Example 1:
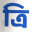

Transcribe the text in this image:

ত্ৰি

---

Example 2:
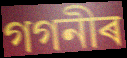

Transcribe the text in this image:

গগনীৰ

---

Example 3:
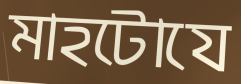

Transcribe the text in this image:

মাহটোযে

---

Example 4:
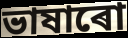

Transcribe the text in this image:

ভাষাৰো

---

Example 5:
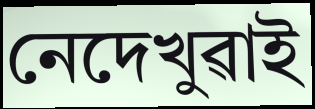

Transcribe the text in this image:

নেদেখুৱাই